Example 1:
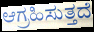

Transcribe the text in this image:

ಆಗ್ರಹಿಸುತ್ತದೆ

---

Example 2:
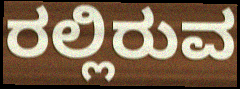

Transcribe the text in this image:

ರಲ್ಲಿರುವ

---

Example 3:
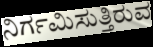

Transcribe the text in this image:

ನಿರ್ಗಮಿಸುತ್ತಿರುವ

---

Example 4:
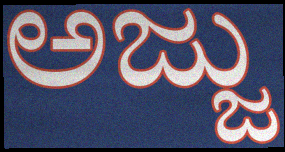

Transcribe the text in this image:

ಅಜ್ಜು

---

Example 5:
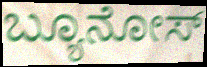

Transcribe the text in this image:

ಬ್ಯೂನೋಸ್